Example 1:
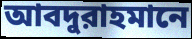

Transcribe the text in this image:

আবদুরাহমানে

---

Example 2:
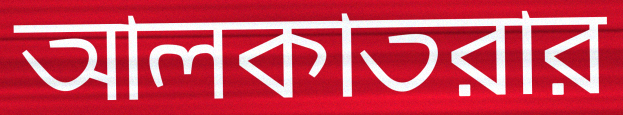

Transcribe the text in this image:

আলকাতরার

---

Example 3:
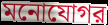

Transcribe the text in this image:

মনোযোগর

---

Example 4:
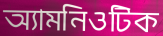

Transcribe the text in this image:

অ্যামনিওটিক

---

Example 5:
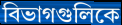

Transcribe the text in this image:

বিভাগগুলিকে